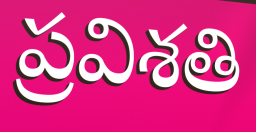
ప్రవిశతి